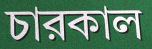
চারকাল